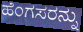
ಹೆಂಗಸರನ್ನು